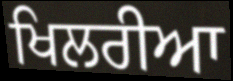
ਖਿਲਰੀਆ